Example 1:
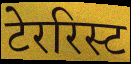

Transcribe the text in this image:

टेररिस्ट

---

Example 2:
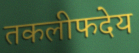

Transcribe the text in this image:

तकलीफदेय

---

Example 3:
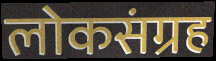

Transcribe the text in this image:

लोकसंग्रह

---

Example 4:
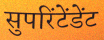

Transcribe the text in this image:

सुपरिंटेंडेंट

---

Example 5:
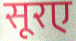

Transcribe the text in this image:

सूरए